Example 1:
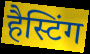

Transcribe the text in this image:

हैस्टिंग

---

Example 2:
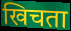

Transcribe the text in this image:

खिचता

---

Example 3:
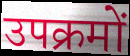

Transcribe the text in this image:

उपक्रमों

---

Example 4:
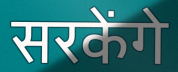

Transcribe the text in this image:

सरकेंगे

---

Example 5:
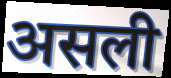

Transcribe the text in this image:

असली